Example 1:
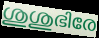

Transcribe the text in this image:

ശുശുഭിരേ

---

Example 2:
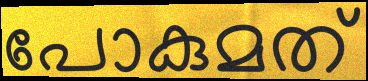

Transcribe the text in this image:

പോകുമത്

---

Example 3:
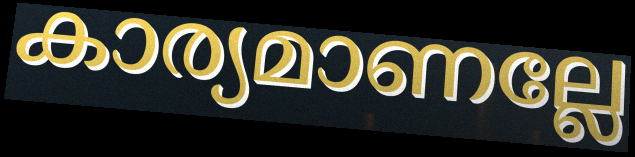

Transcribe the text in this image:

കാര്യമാണല്ലേ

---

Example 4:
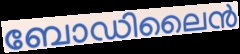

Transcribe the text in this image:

ബോഡിലൈൻ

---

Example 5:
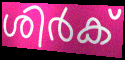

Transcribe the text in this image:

ശിർക്